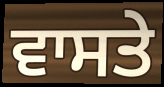
ਵਾਸਤੇ